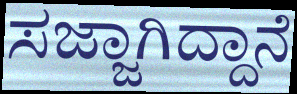
ಸಜ್ಜಾಗಿದ್ದಾನೆ